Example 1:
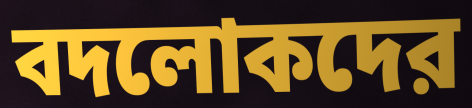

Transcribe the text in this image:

বদলোকদের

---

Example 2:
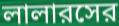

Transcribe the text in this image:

লালারসের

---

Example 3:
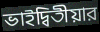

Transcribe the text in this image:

ভাইদ্বিতীয়ার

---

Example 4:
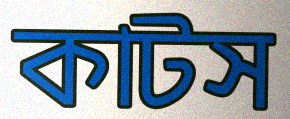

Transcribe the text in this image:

কাটস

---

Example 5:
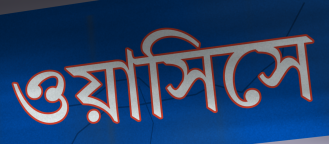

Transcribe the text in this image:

ওয়াসিসে